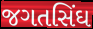
જગતસિંઘ